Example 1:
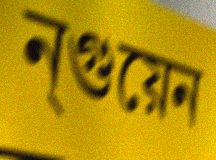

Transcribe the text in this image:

ন্গুয়েন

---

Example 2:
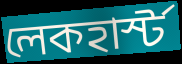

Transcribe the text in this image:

লেকহার্স্ট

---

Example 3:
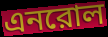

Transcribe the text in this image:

এনরোল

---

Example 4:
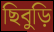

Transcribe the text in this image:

ছিবুড়ি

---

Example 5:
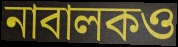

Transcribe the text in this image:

নাবালকও